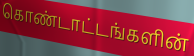
கொண்டாட்டங்களின்